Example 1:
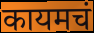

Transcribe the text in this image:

कायमचं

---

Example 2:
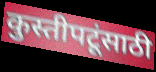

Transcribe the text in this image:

कुस्तीपटूंसाठी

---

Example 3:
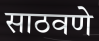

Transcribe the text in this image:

साठवणे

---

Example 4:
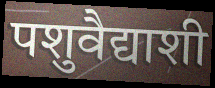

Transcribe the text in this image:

पशुवैद्याशी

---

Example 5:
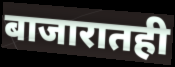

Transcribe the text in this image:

बाजारातही